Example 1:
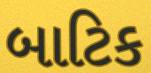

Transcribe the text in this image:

બાટિક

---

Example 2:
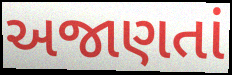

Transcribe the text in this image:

અજાણતાં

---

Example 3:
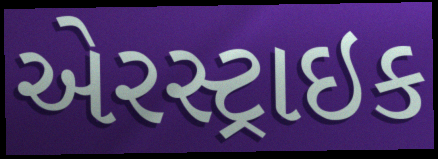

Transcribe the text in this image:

એરસ્ટ્રાઇક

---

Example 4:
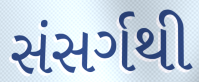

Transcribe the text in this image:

સંસર્ગથી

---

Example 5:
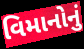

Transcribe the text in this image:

વિમાનોનું